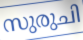
സുരുചി